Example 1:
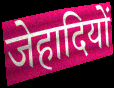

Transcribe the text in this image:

जेहादियों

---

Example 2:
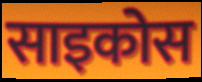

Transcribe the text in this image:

साइकोस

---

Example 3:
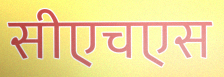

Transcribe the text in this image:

सीएचएस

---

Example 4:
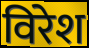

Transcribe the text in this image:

विरेश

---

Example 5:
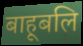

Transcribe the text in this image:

बाहूबलि